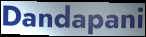
Dandapani